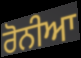
ਰੋਨੀਆ